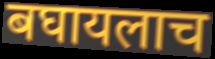
बघायलाच